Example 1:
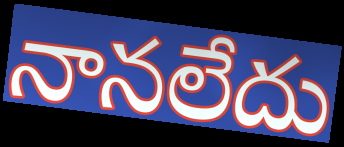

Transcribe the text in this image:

నానలేదు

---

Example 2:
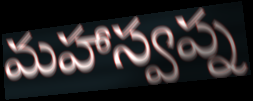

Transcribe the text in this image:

మహాస్వప్న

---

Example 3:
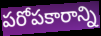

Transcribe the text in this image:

పరోపకారాన్ని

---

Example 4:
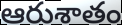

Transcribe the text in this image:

ఆరుశాతం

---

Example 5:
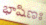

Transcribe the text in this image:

భాషిణః